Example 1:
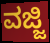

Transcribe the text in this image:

ವಜ್ಜಿ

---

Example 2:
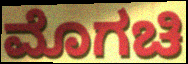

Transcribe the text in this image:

ಮೊಗಚಿ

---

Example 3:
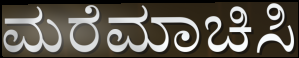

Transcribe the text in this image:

ಮರೆಮಾಚಿಸಿ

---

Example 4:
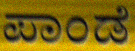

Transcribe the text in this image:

ಪಾಂಡೆ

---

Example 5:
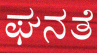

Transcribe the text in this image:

ಘನತೆ